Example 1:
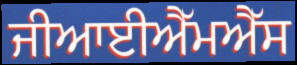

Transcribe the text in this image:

ਜੀਆਈਐੱਮਐੱਸ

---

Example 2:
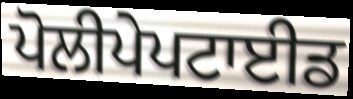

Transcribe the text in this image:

ਪੋਲੀਪੇਪਟਾਈਡ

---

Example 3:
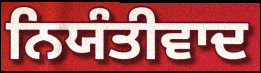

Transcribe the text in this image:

ਨਿਯੰਤੀਵਾਦ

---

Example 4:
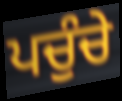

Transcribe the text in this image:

ਪਚੁੰਚੇ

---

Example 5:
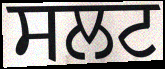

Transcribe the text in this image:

ਸਲਟ